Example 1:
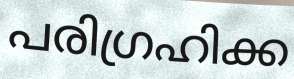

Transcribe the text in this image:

പരിഗ്രഹിക്ക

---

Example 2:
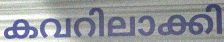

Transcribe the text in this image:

കവറിലാക്കി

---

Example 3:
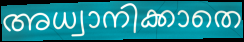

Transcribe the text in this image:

അധ്വാനിക്കാതെ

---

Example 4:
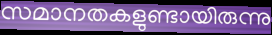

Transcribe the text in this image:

സമാനതകളുണ്ടായിരുന്നു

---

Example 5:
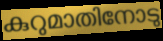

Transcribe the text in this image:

കുറുമാതിനോടു